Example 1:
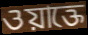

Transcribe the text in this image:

ওয়াক্তে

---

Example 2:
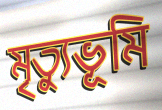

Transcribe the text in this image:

মৃত্যুভূমি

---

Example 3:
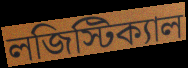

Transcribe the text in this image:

লজিস্টিক্যাল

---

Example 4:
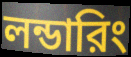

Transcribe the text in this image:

লন্ডারিং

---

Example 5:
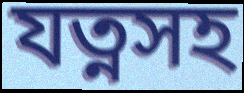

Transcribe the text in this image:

যত্নসহ